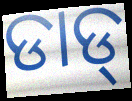
ଡାଡ୍